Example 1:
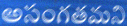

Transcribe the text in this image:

అసంగతమని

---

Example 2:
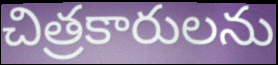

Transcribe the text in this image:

చిత్రకారులను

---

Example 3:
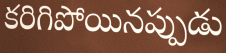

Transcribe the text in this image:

కరిగిపోయినప్పుడు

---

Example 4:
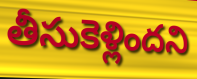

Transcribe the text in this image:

తీసుకెళ్లిందని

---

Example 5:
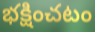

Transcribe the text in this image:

భక్షించటం